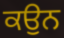
ਕਉਨ